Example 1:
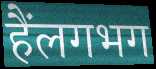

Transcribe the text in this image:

हैंलगभग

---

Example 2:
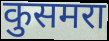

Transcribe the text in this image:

कुसमरा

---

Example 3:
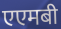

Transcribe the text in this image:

एएमबी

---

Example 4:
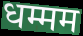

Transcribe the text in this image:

धम्मम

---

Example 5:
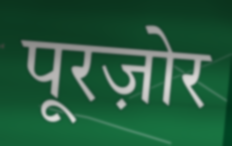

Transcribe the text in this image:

पूरज़ोर